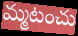
మ్మటంచు